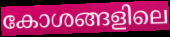
കോശങ്ങളിലെ